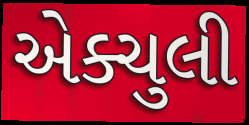
એક્ચુલી